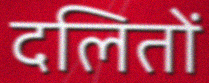
दलितों